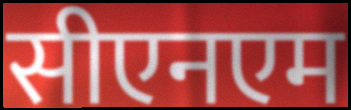
सीएनएम